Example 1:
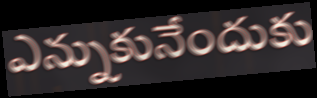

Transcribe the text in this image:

ఎన్నుకునేందుకు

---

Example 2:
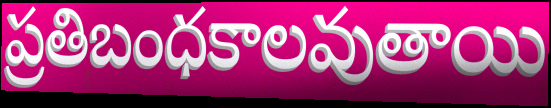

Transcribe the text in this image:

ప్రతిబంధకాలవుతాయి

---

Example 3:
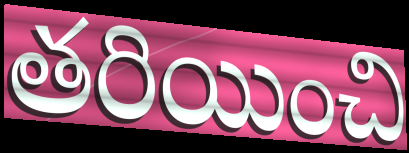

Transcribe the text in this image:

తరియించి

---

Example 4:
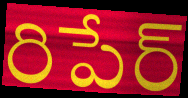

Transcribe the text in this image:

రిపేర్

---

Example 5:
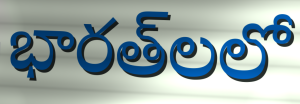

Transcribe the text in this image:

భారత్‌లలో